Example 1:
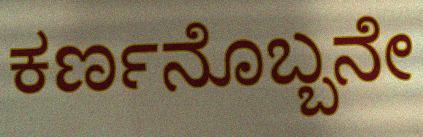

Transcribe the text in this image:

ಕರ್ಣನೊಬ್ಬನೇ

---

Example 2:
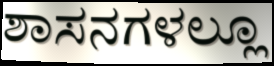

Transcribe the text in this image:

ಶಾಸನಗಳಲ್ಲೂ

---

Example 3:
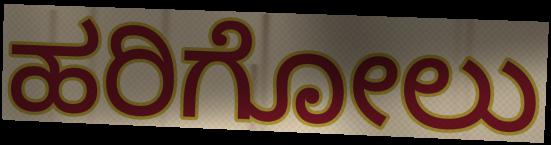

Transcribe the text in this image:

ಹರಿಗೋಲು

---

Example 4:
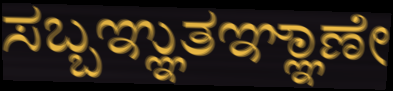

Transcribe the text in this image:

ಸಬ್ಬಞ್ಞುತಞ್ಞಾಣೇ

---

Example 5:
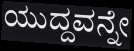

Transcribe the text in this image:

ಯುದ್ದವನ್ನೇ